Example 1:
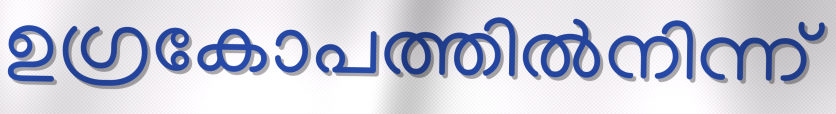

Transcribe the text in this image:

ഉഗ്രകോപത്തിൽനിന്ന്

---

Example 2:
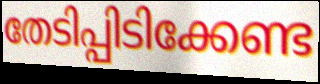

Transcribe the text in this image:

തേടിപ്പിടിക്കേണ്ട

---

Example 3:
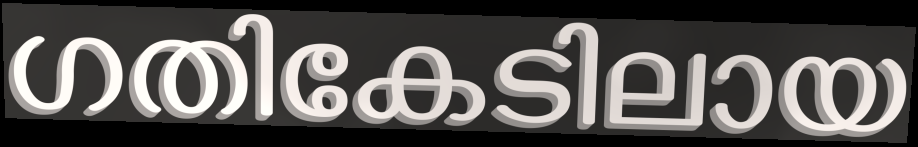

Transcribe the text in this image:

ഗതികേടിലായ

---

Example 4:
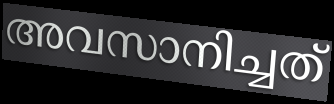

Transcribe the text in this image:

അവസാനിച്ചത്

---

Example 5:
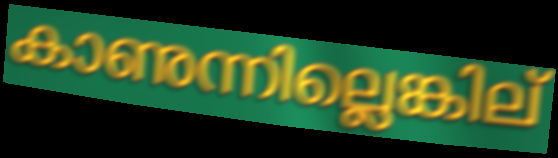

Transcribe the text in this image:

കാണുന്നില്ലെങ്കില്